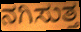
ನಗಿಸುತ್ತ